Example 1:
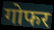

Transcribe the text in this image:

गोफर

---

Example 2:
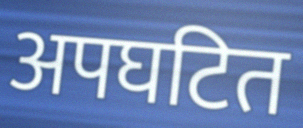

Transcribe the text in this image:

अपघटित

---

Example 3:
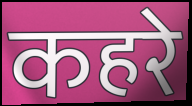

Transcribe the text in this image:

कहरे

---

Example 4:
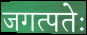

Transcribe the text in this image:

जगत्पतेः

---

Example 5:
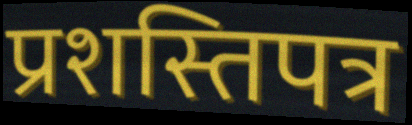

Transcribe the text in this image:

प्रशस्तिपत्र